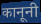
कानूनी